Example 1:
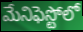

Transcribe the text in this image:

మేనిఫెస్టోలో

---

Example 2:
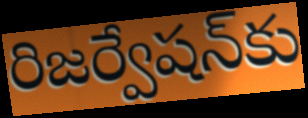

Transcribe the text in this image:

రిజర్వేషన్‌కు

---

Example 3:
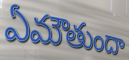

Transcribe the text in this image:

ఏమౌతుందా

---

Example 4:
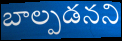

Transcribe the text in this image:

బాల్పడనని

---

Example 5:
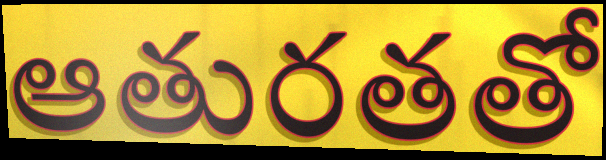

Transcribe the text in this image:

ఆతురతతో